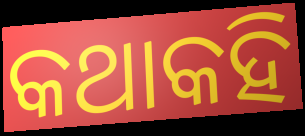
କଥାକହି